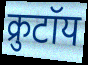
क्रुटॉय